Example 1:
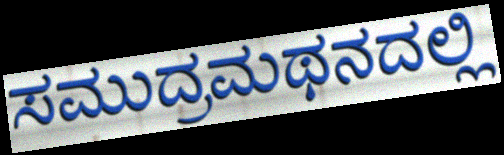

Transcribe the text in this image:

ಸಮುದ್ರಮಥನದಲ್ಲಿ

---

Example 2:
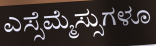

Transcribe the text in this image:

ಎಸ್ಸೆಮ್ಮೆಸ್ಸುಗಳೂ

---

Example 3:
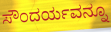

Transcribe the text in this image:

ಸೌಂದರ್ಯವನ್ನೂ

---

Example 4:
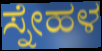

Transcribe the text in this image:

ಸ್ನೇಹಳ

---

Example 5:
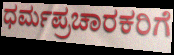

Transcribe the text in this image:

ಧರ್ಮಪ್ರಚಾರಕರಿಗೆ